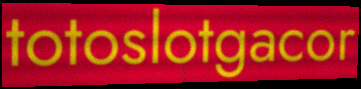
totoslotgacor